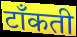
टाँकती